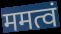
ममत्वं